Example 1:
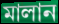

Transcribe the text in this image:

মালান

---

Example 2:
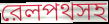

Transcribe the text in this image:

রেলপথসহ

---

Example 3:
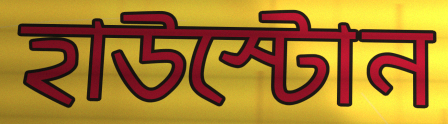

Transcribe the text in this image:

হাউস্টোন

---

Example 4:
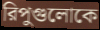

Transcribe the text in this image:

রিপুগুলোকে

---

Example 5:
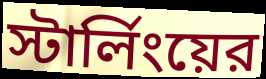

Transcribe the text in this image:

স্টার্লিংয়ের